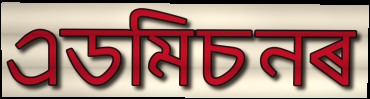
এডমিচনৰ